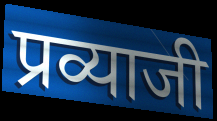
प्रव्याजी